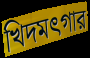
খিদমৎগার